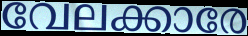
വേലക്കാരേ